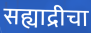
सह्याद्रीचा